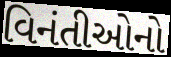
વિનંતીઓનો